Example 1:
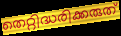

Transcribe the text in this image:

തെറ്റിദ്ധരിക്കരുത്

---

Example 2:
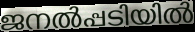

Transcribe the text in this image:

ജനൽപ്പടിയിൽ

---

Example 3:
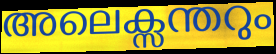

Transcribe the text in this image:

അലെക്സന്തറും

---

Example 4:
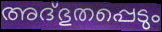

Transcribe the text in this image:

അദ്ഭുതപ്പെടും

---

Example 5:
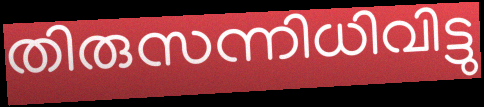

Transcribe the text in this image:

തിരുസന്നിധിവിട്ടു